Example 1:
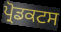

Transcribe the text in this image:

ਪ੍ਰੋਡਕਟਸ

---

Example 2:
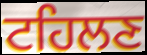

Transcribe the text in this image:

ਟਹਿਲਣ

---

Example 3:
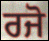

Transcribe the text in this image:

ਰਜੋ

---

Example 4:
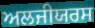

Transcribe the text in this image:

ਅਲਜੀਯਰਸ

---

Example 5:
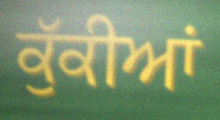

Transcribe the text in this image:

ਕੁੱਕੀਆਂ